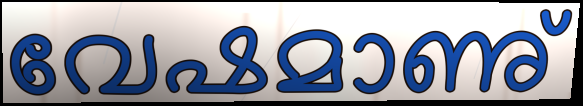
വേഷമാണു്